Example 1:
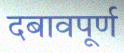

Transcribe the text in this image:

दबावपूर्ण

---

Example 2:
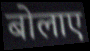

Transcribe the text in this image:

बोलाए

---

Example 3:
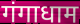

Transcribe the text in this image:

गंगाधाम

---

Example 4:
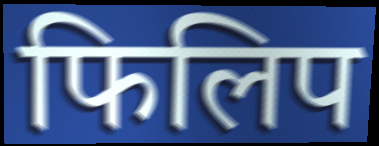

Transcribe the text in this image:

फिलिप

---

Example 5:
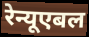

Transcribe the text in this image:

रेन्यूएबल